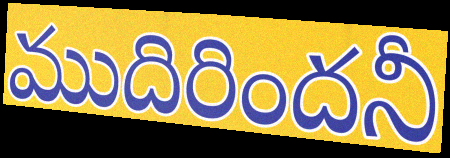
ముదిరిందనీ